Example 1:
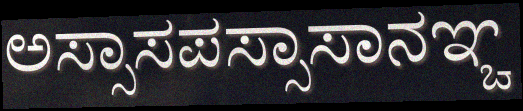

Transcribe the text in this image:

ಅಸ್ಸಾಸಪಸ್ಸಾಸಾನಞ್ಚ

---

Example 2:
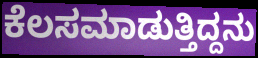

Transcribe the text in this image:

ಕೆಲಸಮಾಡುತ್ತಿದ್ದನು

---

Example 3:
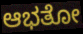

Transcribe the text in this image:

ಆಭತೋ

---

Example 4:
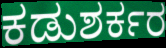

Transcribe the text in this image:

ಕಡುಶರ್ಕರ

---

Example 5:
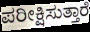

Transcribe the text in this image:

ಪರೀಕ್ಷಿಸುತ್ತಾರೆ